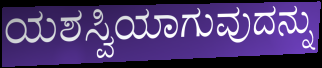
ಯಶಸ್ವಿಯಾಗುವುದನ್ನು